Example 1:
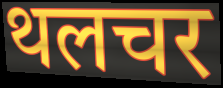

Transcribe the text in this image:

थलचर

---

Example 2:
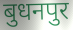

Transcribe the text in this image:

बुधनपुर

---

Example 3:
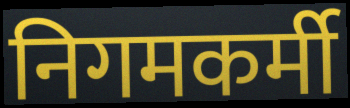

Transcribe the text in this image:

निगमकर्मी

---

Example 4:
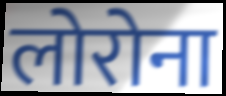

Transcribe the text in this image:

लोरोना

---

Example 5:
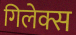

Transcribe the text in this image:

गिलेक्स